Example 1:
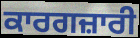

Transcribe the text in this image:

ਕਾਰਗਜ਼ਾਰੀ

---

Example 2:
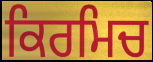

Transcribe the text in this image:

ਕਿਰਮਿਚ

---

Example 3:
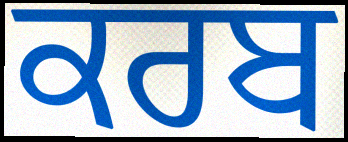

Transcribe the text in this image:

ਕਰਬ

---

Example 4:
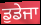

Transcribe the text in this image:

ਡੁਡੇਜਾ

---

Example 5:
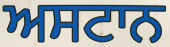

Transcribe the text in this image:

ਅਸਟਾਨ